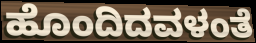
ಹೊಂದಿದವಳಂತೆ